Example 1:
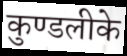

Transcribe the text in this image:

कुण्डलीके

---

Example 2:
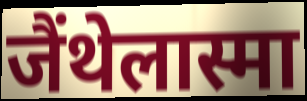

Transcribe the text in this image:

जैंथेलास्मा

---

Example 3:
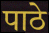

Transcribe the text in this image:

पाठे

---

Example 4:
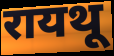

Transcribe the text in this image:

रायथू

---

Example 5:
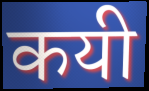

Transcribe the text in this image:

कयी